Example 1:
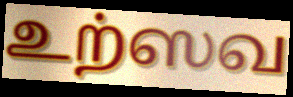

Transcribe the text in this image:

உற்ஸவ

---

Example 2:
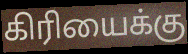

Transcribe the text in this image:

கிரியைக்கு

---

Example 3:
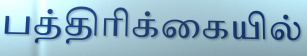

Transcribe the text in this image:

பத்திரிக்கையில்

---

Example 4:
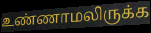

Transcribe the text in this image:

உண்ணாமலிருக்க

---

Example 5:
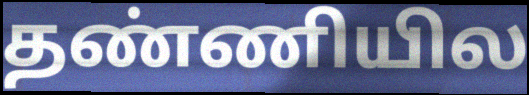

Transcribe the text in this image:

தண்ணியில